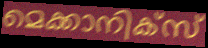
മെക്കാനിക്സ്